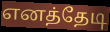
எனத்தேடி